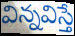
విన్నవిస్తే